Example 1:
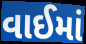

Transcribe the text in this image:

વાઈમાં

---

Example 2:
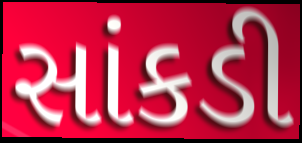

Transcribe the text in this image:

સાંકડી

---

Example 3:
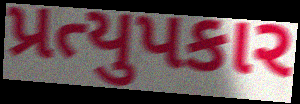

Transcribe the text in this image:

પ્રત્યુપકાર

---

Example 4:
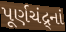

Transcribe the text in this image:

પૂર્ણચંદ્ર્નાં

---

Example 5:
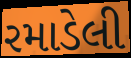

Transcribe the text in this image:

રમાડેલી